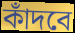
কাঁদবে